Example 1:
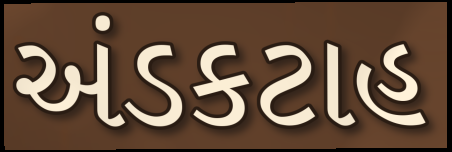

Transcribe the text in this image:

અંડકટાહ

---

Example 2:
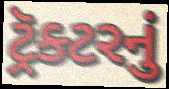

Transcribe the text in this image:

ટ્રૅક્ટરનું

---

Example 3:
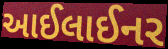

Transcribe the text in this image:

આઈલાઈનર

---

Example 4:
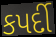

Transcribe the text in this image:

કપર્દી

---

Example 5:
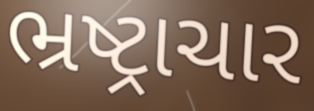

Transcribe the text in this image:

ભ્રષ્ટ્રાચાર